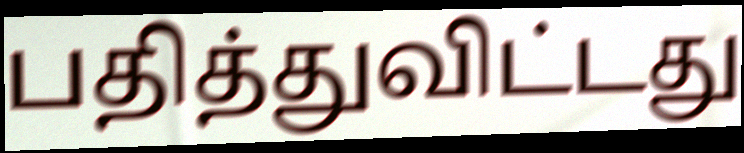
பதித்துவிட்டது